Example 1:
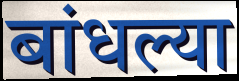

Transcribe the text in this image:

बांधल्या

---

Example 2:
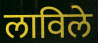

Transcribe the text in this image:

लाविले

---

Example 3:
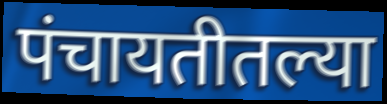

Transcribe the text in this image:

पंचायतीतल्या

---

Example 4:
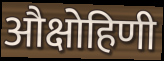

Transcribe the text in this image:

औक्षोहिणी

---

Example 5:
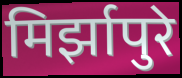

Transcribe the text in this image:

मिर्झापुरे